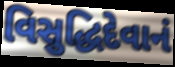
વિસુદ્ધિદેવાનં